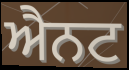
ਐਨਟ